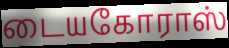
டையகோராஸ்